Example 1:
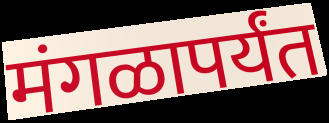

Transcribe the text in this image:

मंगळापर्यंत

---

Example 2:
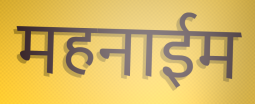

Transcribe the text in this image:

महनाईम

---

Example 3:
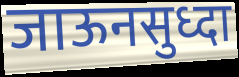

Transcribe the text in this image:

जाऊनसुध्दा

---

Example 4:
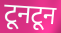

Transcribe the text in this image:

टूनटून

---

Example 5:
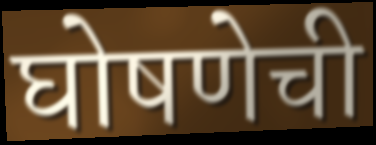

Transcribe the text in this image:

घोषणेची